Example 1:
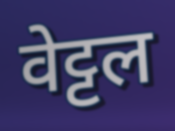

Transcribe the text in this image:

वेट्टल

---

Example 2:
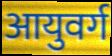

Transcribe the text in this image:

आयुवर्ग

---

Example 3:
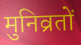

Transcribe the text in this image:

मुनिव्रतों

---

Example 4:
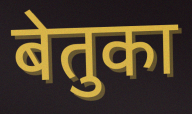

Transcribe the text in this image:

बेतुका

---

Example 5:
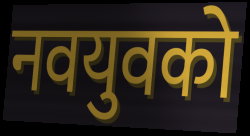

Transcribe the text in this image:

नवयुवको